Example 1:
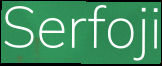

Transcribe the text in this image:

Serfoji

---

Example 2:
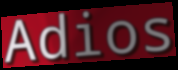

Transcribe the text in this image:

Adios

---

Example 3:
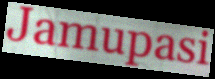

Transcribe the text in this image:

Jamupasi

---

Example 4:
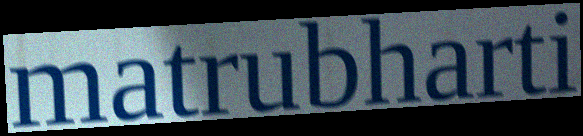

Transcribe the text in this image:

matrubharti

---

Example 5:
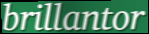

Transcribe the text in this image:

brillantor